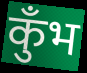
कुँभ